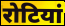
रोटियां